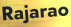
Rajarao